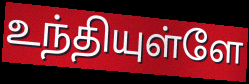
உந்தியுள்ளே